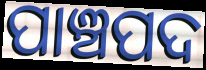
ପାଞ୍ଚପଦ